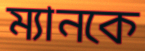
ম্যানকে